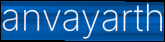
anvayarth